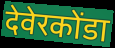
देवेरकोंडा